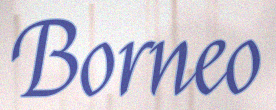
Borneo